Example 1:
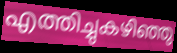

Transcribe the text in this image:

എത്തിച്ചുകഴിഞ്ഞു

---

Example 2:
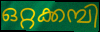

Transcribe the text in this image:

ഒറ്റക്കമ്പി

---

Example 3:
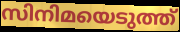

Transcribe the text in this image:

സിനിമയെടുത്ത്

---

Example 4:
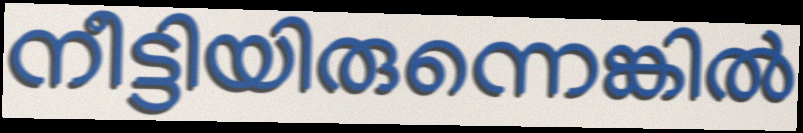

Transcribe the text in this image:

നീട്ടിയിരുന്നെങ്കിൽ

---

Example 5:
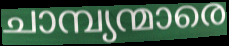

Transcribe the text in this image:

ചാമ്പ്യന്മാരെ